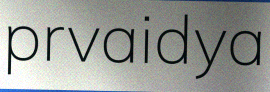
prvaidya